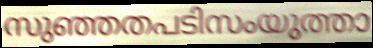
സുഞ്ഞതപടിസംയുത്താ